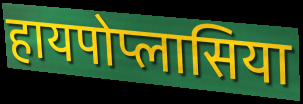
हायपोप्लासिया